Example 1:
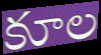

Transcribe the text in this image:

కూల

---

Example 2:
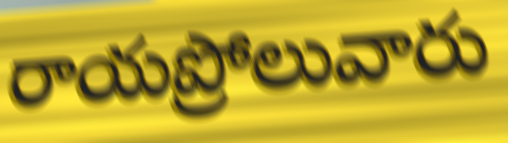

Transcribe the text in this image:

రాయప్రోలువారు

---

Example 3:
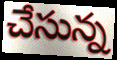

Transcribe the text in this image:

చేసున్న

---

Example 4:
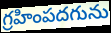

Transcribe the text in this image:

గ్రహింపదగును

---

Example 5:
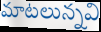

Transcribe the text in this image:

మాటలున్నవి